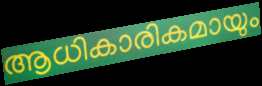
ആധികാരികമായും